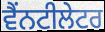
ਵੈਂਨਟੀਲੇਟਰ